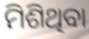
ମିଶିଥିବା